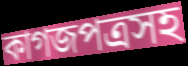
কাগজপত্রসহ